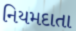
નિયમદાતા